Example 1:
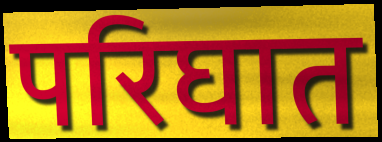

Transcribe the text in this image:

परिघात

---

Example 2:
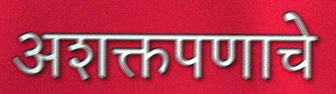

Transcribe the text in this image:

अशक्तपणाचे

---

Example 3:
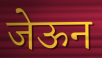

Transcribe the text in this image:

जेऊन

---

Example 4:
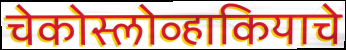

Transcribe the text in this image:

चेकोस्लोव्हाकियाचे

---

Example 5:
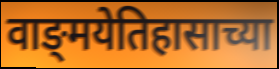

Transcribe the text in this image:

वाङ्‌मयेतिहासाच्या